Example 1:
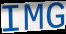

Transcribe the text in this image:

IMG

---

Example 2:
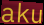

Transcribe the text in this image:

aku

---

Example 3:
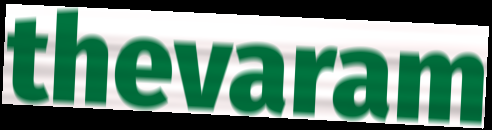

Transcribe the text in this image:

thevaram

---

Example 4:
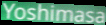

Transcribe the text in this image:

Yoshimasa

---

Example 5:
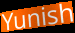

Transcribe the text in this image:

Yunish